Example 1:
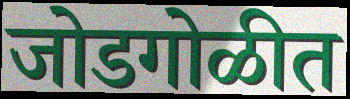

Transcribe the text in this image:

जोडगोळीत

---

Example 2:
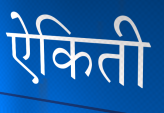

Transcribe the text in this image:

ऐकिती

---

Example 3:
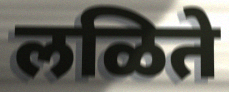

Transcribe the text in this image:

लळिते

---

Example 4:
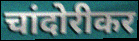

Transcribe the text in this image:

चांदोरीकर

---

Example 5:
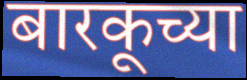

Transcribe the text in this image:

बारकूच्या